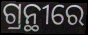
ଗ୍ରନ୍ଥୀରେ